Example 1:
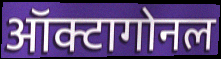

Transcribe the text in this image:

ऑक्टागोनल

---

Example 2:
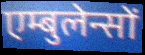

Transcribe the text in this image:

एम्बुलेन्सों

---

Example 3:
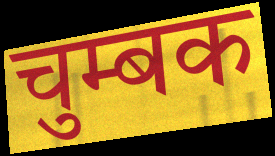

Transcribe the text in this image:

चुम्बक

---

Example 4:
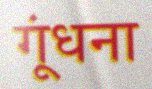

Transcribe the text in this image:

गूंधना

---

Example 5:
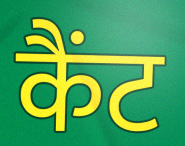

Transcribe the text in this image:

कैंट